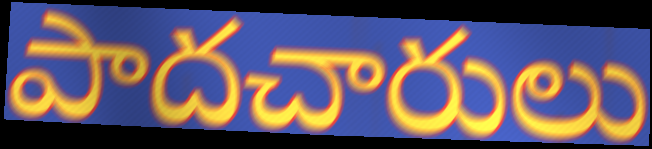
పాదచారులు